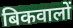
बिकवालों